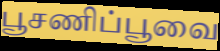
பூசணிப்பூவை